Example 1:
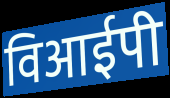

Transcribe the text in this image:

विआईपी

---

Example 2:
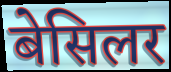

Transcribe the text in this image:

बेसिलर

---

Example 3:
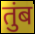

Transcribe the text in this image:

तुंब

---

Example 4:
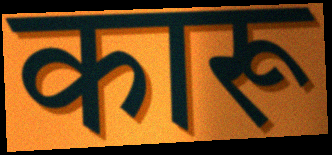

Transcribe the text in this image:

कारू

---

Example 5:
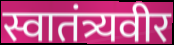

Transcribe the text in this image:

स्वातंत्र्यवीर